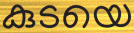
കുടയെ